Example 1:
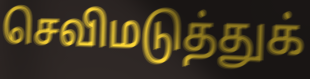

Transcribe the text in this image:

செவிமடுத்துக்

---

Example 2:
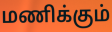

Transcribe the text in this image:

மணிக்கும்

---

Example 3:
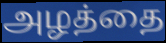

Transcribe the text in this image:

அழத்தை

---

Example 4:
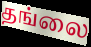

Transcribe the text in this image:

தங்லை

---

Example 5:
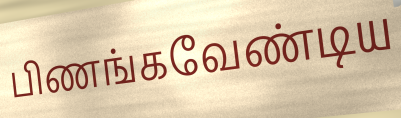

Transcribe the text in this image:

பிணங்கவேண்டிய